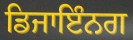
ਡਿਜਾਇੰਨਗ